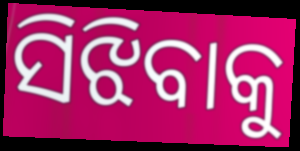
ସିଝିବାକୁ